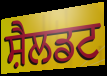
ਸ਼ੈਲਡਟ